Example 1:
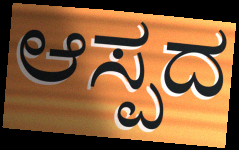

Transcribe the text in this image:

ಆಸ್ಪದ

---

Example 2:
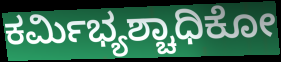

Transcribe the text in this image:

ಕರ್ಮಿಭ್ಯಶ್ಚಾಧಿಕೋ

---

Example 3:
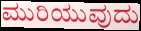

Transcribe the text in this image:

ಮುರಿಯುವುದು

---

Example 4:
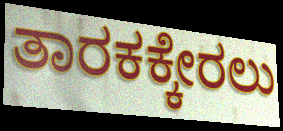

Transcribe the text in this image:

ತಾರಕಕ್ಕೇರಲು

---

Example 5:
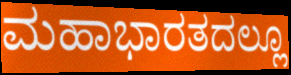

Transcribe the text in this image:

ಮಹಾಭಾರತದಲ್ಲೂ